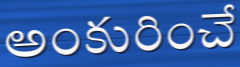
అంకురించే